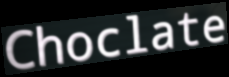
Choclate